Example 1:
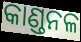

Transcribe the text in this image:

କାଣ୍ଡନଳ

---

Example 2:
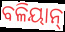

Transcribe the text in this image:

ବଳିୟାନ୍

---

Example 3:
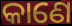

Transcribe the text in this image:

କାଣେ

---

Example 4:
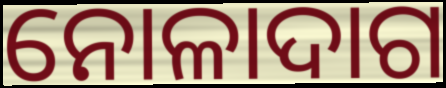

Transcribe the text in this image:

ନୋଳାଦାଗ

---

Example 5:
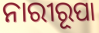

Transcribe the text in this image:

ନାରୀରୂପା